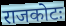
राजकोटः